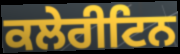
ਕਲੇਰੀਟਿਨ